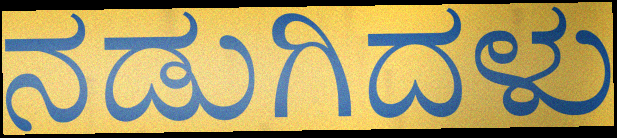
ನಡುಗಿದಳು